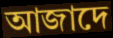
আজাদে